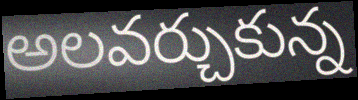
అలవర్చుకున్న